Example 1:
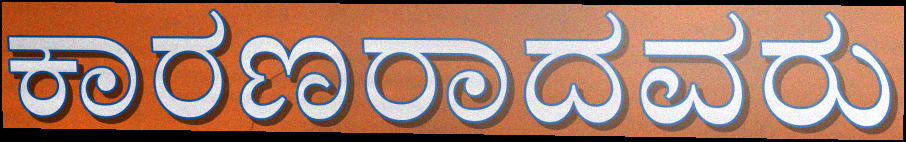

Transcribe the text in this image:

ಕಾರಣರಾದವರು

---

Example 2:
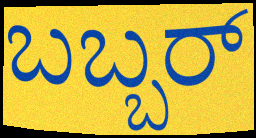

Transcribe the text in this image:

ಬಬ್ಬರ್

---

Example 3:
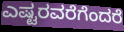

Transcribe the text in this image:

ಎಷ್ಟರವರೆಗೆಂದರೆ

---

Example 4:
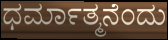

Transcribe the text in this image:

ಧರ್ಮಾತ್ಮನೆಂದು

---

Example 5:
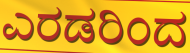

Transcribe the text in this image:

ಎರಡರಿಂದ